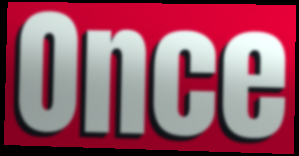
Once